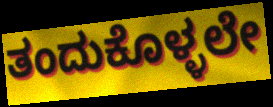
ತಂದುಕೊಳ್ಳಲೇ